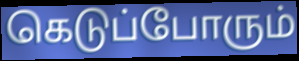
கெடுப்போரும்